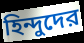
হিন্দুদের